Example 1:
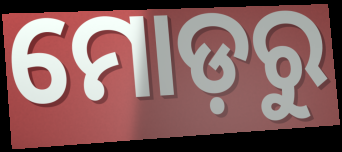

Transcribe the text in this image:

ମୋଡ଼ରୁ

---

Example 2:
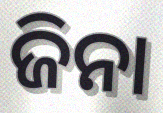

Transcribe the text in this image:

ଜିନା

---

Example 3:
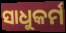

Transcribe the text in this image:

ସାଧୁକର୍ମ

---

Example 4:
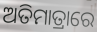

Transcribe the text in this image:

ଅତିମାତ୍ରାରେ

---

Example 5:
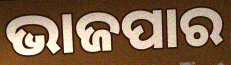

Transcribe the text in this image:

ଭାଜପାର